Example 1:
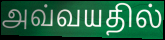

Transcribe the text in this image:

அவ்வயதில்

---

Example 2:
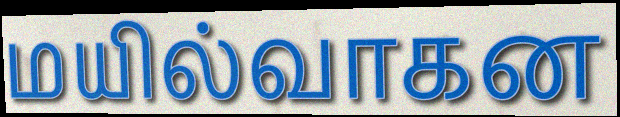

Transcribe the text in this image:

மயில்வாகன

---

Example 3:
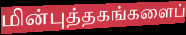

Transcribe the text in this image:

மின்புத்தகங்களைப்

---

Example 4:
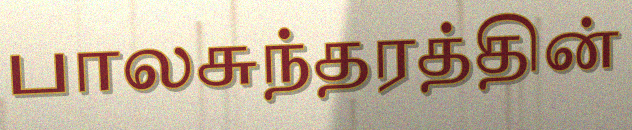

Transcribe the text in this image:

பாலசுந்தரத்தின்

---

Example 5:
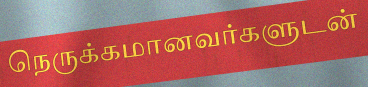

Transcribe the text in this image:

நெருக்கமானவர்களுடன்